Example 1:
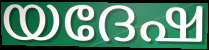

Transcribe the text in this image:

യദേഷ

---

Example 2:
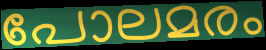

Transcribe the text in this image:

പോലമരം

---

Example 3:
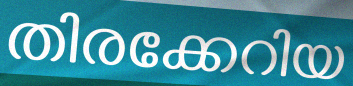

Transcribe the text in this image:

തിരക്കേറിയ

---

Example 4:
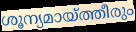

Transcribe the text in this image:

ശൂന്യമായ്ത്തീരും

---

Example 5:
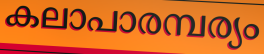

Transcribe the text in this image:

കലാപാരമ്പര്യം